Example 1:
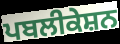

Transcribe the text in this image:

ਪਬਲੀਕੇਸ਼ਨ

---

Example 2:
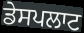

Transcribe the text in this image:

ਡੇਸਪਲਾਟ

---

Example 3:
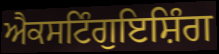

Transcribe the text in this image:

ਐਕਸਟਿੰਗੁਇਸ਼ਿੰਗ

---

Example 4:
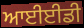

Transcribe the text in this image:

ਆਈਈਡੀ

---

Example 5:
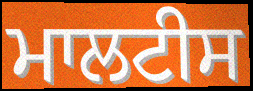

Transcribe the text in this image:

ਮਾਲਟੀਸ